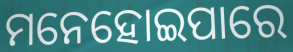
ମନେହୋଇପାରେ